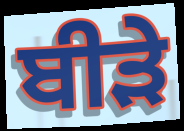
ਬੀੜੇ